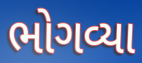
ભોગવ્યા